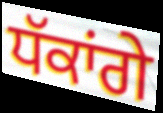
ਧੱਕਾਂਗੇ